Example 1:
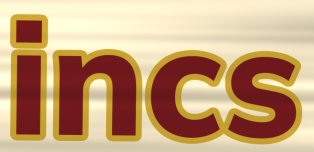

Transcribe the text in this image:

incs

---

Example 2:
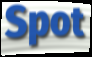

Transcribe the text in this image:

Spot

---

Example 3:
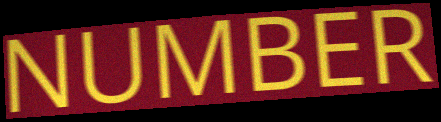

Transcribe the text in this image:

NUMBER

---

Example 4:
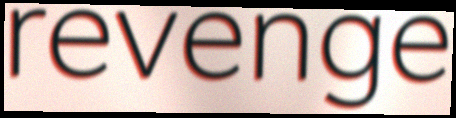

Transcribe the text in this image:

revenge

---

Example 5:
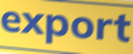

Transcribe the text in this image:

export